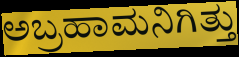
ಅಬ್ರಹಾಮನಿಗಿತ್ತು